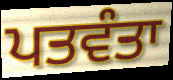
ਪਤਵੰਤਾ